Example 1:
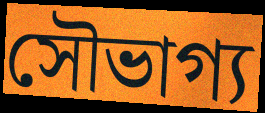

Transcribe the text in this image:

সৌভাগ্য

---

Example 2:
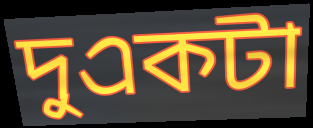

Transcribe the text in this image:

দুএকটা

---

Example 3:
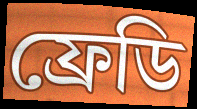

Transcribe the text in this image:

ফ্রেডি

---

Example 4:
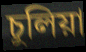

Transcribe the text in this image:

চুলিয়া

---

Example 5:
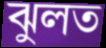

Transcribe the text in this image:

ঝুলত